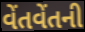
વેંતવેંતની